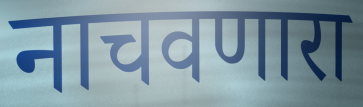
नाचवणारा